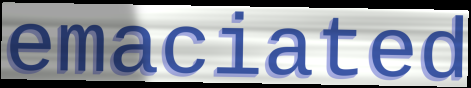
emaciated